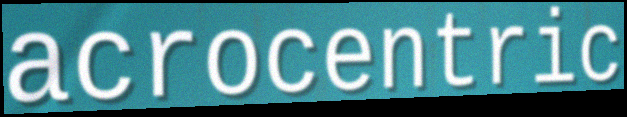
acrocentric